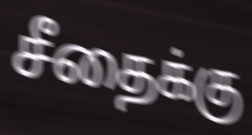
சீதைக்கு